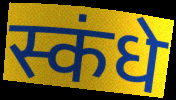
स्कंधे